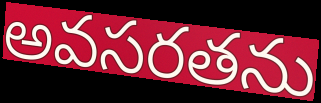
అవసరతను